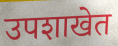
उपशाखेत